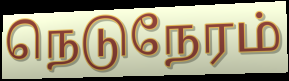
நெடுநேரம்